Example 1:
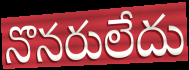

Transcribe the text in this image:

నొనరులేదు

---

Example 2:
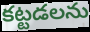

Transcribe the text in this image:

కట్టడలను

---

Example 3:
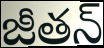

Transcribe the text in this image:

జీతన్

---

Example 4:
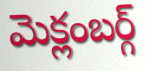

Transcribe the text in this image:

మెక్లంబర్గ్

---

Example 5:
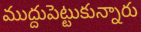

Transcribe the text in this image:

ముద్దుపెట్టుకున్నారు